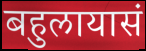
बहुलायासं